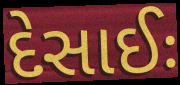
દેસાઈઃ